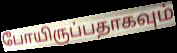
போயிருப்பதாகவும்